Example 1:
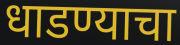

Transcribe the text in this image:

धाडण्याचा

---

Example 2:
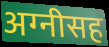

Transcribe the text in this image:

अग्नीसह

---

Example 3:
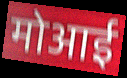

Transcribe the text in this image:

मोआई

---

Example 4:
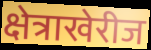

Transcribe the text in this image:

क्षेत्राखेरीज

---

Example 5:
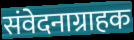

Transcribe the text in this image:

संवेदनाग्राहक